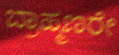
ಬ್ರಾಹ್ಮಣರೇ